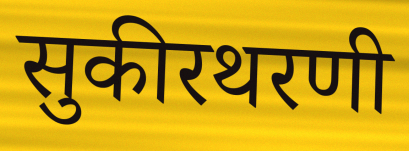
सुकीरथरणी